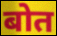
बोत